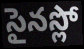
సైనస్లో